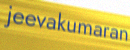
jeevakumaran